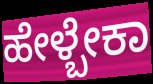
ಹೇಳ್ಬೇಕಾ